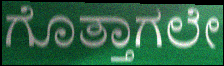
ಗೊತ್ತಾಗಲೇ